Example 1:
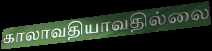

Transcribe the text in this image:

காலாவதியாவதில்லை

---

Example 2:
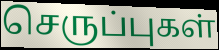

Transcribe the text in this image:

செருப்புகள்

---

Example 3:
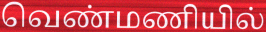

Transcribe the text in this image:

வெண்மணியில்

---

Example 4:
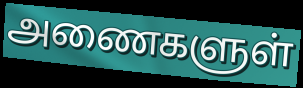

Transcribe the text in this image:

அணைகளுள்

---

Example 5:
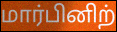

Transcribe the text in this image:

மார்பினிற்